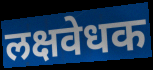
लक्षवेधक